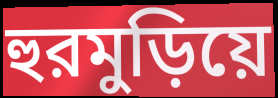
হুরমুড়িয়ে